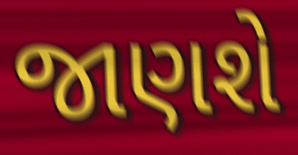
જાણશે